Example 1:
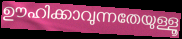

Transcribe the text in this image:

ഊഹിക്കാവുന്നതേയുള്ളൂ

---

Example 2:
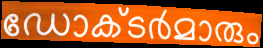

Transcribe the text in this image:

ഡോക്ടർമാരും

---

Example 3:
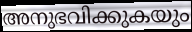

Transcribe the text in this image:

അനുഭവിക്കുകയും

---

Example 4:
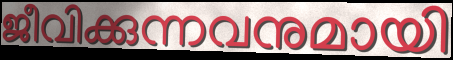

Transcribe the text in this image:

ജീവിക്കുന്നവനുമായി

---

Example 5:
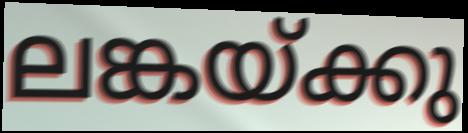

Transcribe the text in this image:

ലങ്കയ്ക്കു